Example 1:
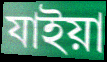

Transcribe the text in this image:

যাইয়া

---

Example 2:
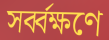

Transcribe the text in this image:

সর্ব্বক্ষণে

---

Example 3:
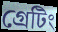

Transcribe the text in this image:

গ্রেটিং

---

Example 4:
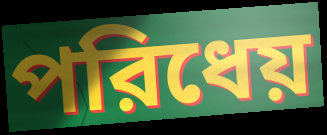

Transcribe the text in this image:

পরিধেয়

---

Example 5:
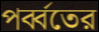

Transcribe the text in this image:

পর্ব্বতের